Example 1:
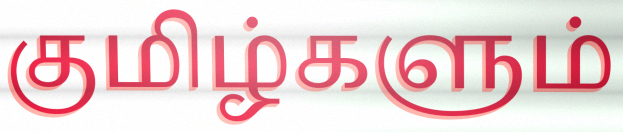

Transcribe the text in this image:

குமிழ்களும்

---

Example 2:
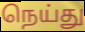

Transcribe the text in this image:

நெய்து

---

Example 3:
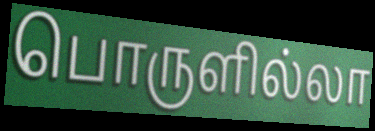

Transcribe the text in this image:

பொருளில்லா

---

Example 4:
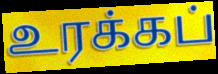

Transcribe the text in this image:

உரக்கப்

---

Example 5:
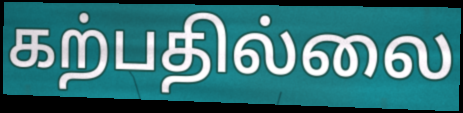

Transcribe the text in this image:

கற்பதில்லை